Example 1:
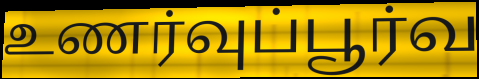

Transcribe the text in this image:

உணர்வுப்பூர்வ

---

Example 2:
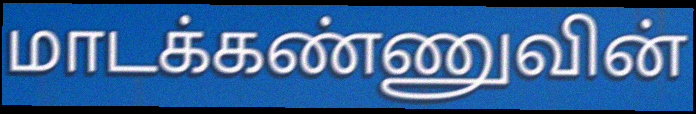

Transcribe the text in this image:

மாடக்கண்ணுவின்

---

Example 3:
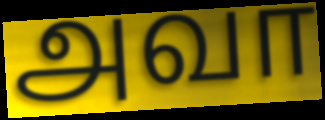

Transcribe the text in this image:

அவா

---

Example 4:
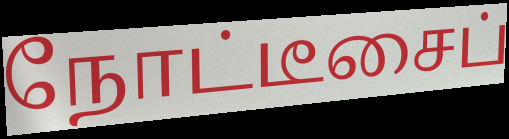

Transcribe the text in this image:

நோட்டீசைப்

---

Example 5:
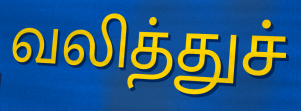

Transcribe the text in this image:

வலித்துச்